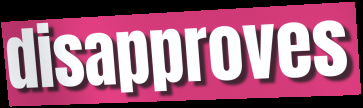
disapproves